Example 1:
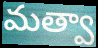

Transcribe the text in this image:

మత్వా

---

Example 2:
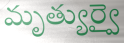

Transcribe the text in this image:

మృత్యుర్వై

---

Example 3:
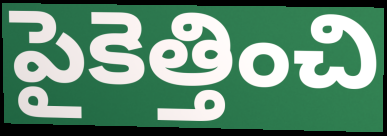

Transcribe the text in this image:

పైకెత్తించి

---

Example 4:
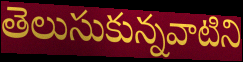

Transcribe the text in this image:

తెలుసుకున్నవాటిని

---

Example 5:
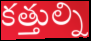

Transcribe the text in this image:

కత్తుల్ని